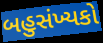
બહુસંખ્યકો